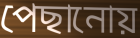
পেছানোয়